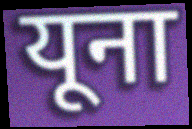
यूना